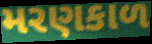
મરણકાળ